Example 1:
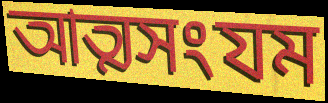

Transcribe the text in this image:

আত্মসংযম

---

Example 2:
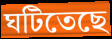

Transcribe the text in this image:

ঘটিতেছে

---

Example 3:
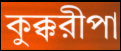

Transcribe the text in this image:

কুক্করীপা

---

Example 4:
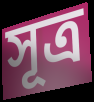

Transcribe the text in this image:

সূত্র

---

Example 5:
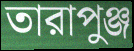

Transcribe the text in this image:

তারাপুঞ্জ